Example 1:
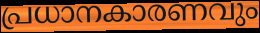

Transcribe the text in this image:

പ്രധാനകാരണവും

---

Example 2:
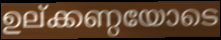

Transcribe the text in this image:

ഉല്ക്കണ്ഠയോടെ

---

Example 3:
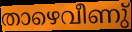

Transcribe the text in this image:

താഴെവീണു്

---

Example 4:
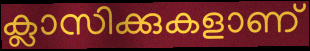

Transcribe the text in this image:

ക്ലാസിക്കുകളാണ്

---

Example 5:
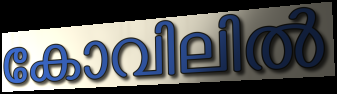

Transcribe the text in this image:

കോവിലിൽ